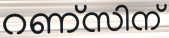
റണ്സിന്